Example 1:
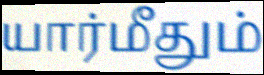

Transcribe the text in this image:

யார்மீதும்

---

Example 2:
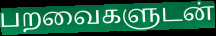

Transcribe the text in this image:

பறவைகளுடன்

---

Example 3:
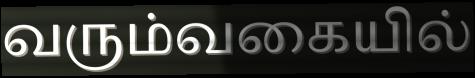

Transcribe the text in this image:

வரும்வகையில்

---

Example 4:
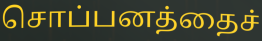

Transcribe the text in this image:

சொப்பனத்தைச்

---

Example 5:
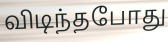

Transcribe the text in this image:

விடிந்தபோது